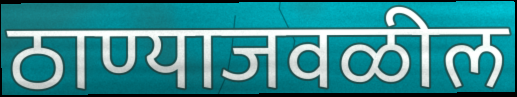
ठाण्याजवळील